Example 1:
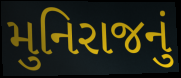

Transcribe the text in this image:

મુનિરાજનું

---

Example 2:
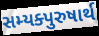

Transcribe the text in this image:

સમ્યક્પુરુષાર્થ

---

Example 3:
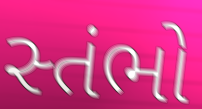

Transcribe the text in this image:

સ્તંભો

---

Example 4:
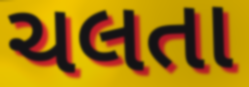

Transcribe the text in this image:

ચલતા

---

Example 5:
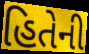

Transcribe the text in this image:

હિતેની